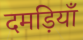
दमड़ियाँ